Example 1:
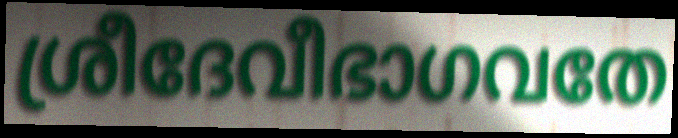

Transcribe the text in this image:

ശ്രീദേവീഭാഗവതേ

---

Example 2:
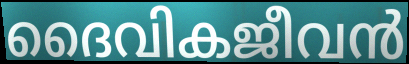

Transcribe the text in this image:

ദൈവികജീവൻ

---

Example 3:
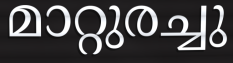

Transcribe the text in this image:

മാറ്റുരച്ചു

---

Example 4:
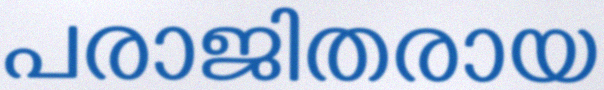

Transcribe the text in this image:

പരാജിതരായ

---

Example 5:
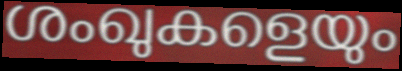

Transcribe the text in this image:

ശംഖുകളെയും